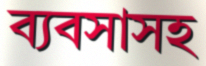
ব্যবসাসহ